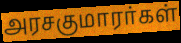
அரசகுமாரர்கள்